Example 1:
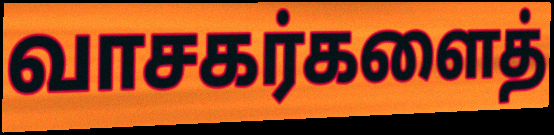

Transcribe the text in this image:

வாசகர்களைத்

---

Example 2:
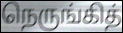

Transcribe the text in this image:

நெருங்கித்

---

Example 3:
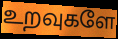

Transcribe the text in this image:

உறவுகளே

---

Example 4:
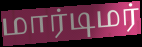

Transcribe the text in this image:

மார்டிமர்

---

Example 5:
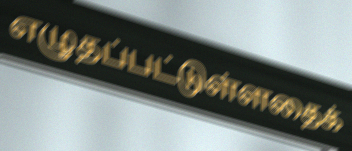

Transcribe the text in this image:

எழுதப்பட்டுள்ளதைக்